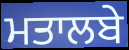
ਮਤਾਲਬੇ